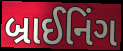
બ્રાઈનિંગ